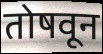
तोषवून